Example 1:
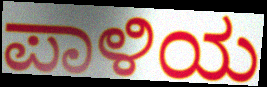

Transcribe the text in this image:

ಪಾಳಿಯ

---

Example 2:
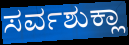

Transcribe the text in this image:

ಸರ್ವಶುಕ್ಲಾ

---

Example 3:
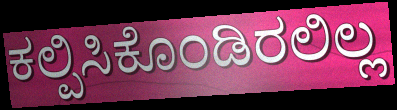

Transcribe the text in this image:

ಕಲ್ಪಿಸಿಕೊಂಡಿರಲಿಲ್ಲ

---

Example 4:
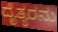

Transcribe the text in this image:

ದೈತ್ಯರನು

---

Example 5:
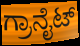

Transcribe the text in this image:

ಗ್ರಾನೈಟ್